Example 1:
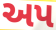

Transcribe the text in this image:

અપ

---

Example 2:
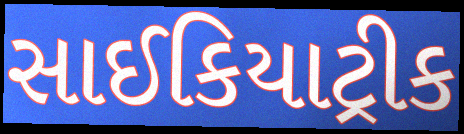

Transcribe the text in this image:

સાઈકિયાટ્રીક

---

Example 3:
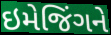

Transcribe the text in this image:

ઇમેજિંગને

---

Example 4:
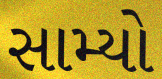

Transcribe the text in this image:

સામ્યો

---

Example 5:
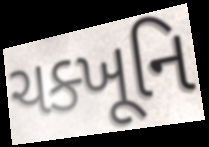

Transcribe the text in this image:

ચક્ખૂનિ